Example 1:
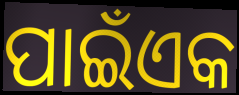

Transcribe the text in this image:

ପାଇଁଏକ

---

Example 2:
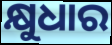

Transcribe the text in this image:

କ୍ଷୁଧାର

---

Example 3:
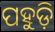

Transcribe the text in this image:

ପହୁଡ଼ି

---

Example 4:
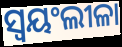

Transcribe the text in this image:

ସ୍ବୟଂଲୀଳା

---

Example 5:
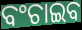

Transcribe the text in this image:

ବଂଚାଇବ